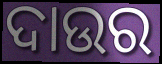
ଦାଉର